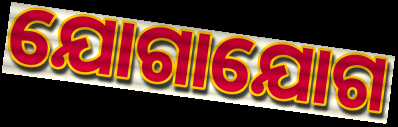
ଯୋଗାଯୋଗ